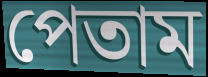
পেতাম